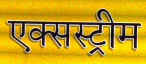
एक्सस्ट्रीम